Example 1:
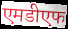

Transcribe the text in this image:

एमडीएफ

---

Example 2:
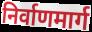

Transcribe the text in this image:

निर्वाणमार्ग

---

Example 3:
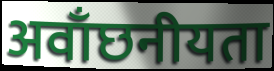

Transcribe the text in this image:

अवाँछनीयता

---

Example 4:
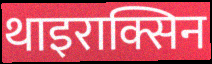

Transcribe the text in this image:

थाइराक्सिन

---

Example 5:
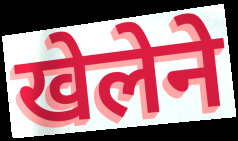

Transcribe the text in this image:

खेलेने